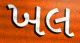
ખલ